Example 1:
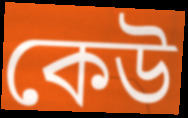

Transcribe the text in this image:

কেউ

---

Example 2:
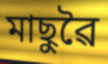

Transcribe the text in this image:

মাছুৱৈ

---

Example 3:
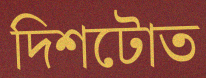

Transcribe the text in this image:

দিশটোত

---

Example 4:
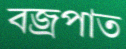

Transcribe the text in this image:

বজ্ৰপাত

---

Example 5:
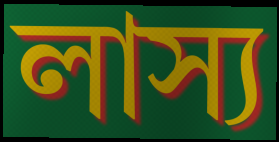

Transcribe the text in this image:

লাস্য